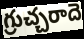
గ్రుచ్చరాదె